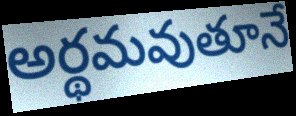
అర్థమవుతూనే